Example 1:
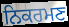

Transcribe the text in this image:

ਨਿਕਰਮਣ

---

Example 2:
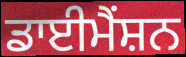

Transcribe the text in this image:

ਡਾਈਮੈਂਸ਼ਨ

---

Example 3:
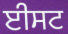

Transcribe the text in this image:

ਈਸਟ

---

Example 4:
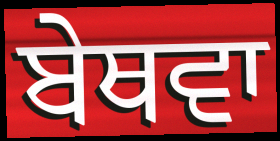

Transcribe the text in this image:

ਬੇਥਵਾ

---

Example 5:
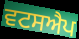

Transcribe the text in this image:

ਵਟਸਐਪ